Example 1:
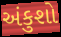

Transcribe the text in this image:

અંકુશો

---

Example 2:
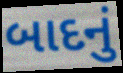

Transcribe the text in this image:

બાદનું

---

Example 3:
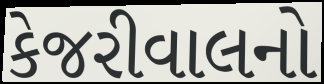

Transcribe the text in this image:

કેજરીવાલનો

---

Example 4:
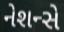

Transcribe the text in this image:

નેશન્સે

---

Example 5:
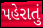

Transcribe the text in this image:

પહેરાતું